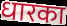
धारका